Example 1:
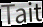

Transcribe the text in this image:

Tait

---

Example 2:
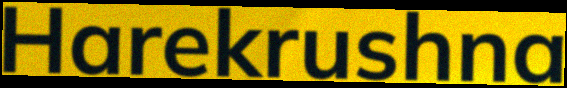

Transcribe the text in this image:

Harekrushna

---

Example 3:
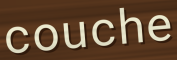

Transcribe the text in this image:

couche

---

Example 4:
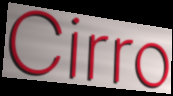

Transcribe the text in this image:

Cirro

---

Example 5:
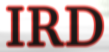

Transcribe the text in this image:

IRD